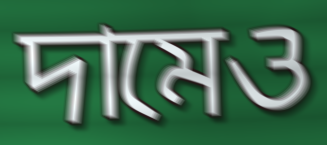
দামেও